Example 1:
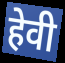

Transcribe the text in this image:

हेवी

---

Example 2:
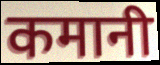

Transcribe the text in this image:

कमानी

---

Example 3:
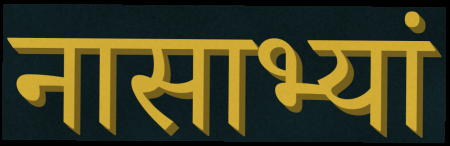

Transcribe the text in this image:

नासाभ्यां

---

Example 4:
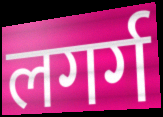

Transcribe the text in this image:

लगर्ग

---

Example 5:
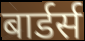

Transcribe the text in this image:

बार्डर्स